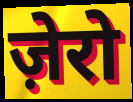
ज़ेरो